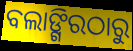
ବଲାଙ୍ଗିରଠାରୁ